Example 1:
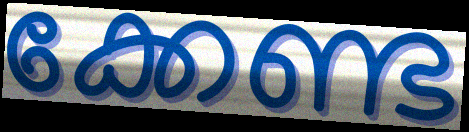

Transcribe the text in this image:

ക്കേണ്ട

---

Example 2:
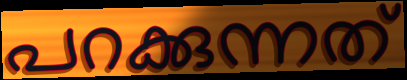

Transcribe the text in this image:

പറക്കുന്നത്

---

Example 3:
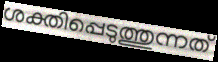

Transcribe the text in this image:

ശക്തിപ്പെടുത്തുന്നത്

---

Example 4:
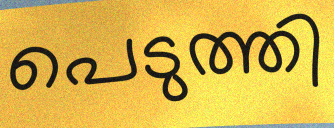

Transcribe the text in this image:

പെടുത്തി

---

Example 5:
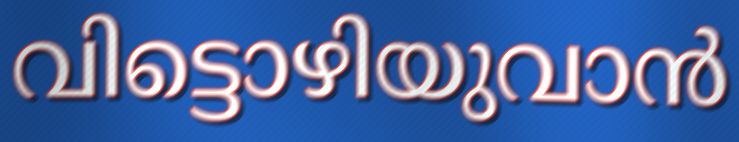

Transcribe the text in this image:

വിട്ടൊഴിയുവാൻ